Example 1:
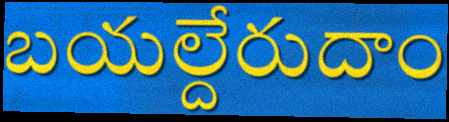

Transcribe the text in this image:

బయల్దేరుదాం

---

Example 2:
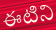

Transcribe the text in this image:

ఈటిని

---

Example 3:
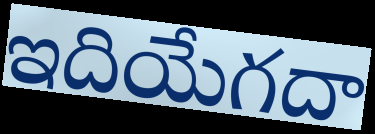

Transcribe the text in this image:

ఇదియేగదా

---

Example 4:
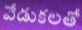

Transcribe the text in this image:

వేడుకలతో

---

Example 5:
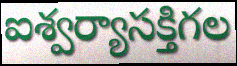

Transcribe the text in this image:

ఐశ్వర్యాసక్తిగల